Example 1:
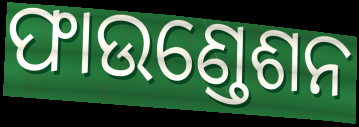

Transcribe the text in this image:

ଫାଉଣ୍ଡେଶନ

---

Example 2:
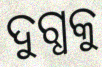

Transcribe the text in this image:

ଦୁଗ୍ଧକୁ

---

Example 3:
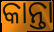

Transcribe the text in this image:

କାନ୍ତା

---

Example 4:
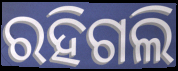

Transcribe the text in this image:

ରହିଗଲି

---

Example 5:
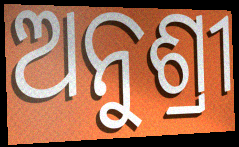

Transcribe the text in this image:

ଅନୁଶ୍ରୀ